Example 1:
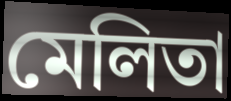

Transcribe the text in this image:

মেলিতা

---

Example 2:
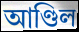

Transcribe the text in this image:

আণ্ডিল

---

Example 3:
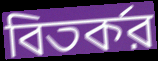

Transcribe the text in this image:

বিতর্কর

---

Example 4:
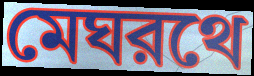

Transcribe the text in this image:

মেঘরথে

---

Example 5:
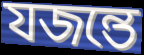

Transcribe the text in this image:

যজন্তে